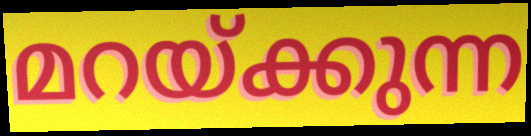
മറയ്ക്കുന്ന